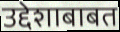
उद्देशाबाबत